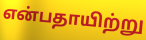
என்பதாயிற்று